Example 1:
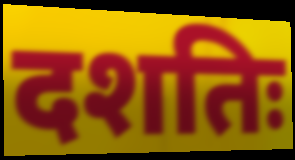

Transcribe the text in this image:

दशतिः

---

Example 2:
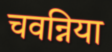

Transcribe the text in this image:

चवन्निया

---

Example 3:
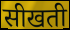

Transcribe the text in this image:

सीखती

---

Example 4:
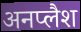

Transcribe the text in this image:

अनप्लैश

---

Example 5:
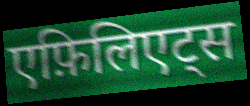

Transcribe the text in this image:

एफ़िलिएट्स